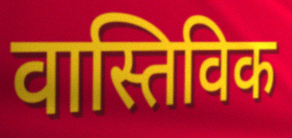
वास्तिविक